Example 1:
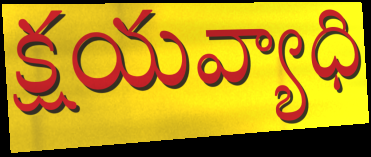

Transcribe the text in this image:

క్షయవ్యాధి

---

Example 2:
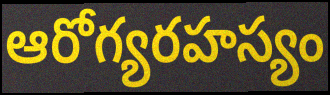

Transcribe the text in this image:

ఆరోగ్యరహస్యం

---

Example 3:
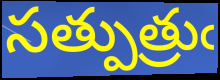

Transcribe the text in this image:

సత్పుత్రుఁ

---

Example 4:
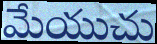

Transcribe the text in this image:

మేయుచు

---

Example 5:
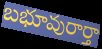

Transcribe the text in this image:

బభూవురార్తా